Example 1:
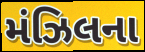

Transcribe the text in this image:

મંઝિલના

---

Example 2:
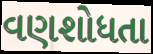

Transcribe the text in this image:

વણશોધતા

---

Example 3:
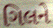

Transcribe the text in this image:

ગિલને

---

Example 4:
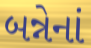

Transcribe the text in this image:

બન્નેનાં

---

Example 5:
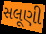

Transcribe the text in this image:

સલૂણી